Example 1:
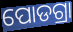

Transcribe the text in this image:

ପୋଡଗ୍ରା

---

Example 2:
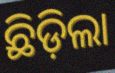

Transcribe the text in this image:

ଛିଡ଼ିଲା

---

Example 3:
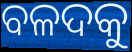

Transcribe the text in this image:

ବଳଦକୁ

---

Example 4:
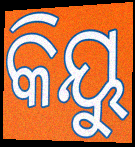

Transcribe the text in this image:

କିୟୁ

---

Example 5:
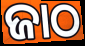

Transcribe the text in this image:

ଜାଠ